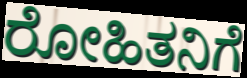
ರೋಹಿತನಿಗೆ